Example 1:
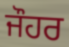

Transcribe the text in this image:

ਜੌਹਰ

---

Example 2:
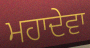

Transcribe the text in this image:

ਮਹਾਦੇਵਾ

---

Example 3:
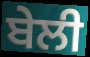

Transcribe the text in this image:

ਬੇਲੀ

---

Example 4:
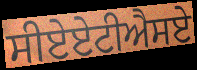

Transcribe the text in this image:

ਸੀਏਏਟੀਐਸਏ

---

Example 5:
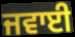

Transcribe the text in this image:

ਜਵਾਈ